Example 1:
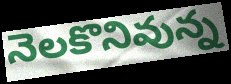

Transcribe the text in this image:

నెలకొనివున్న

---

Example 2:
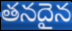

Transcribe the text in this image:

తనదైన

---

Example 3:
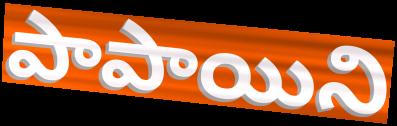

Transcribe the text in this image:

పాపాయిని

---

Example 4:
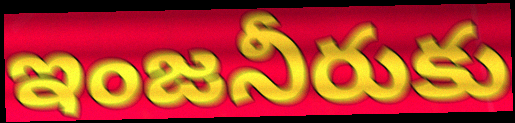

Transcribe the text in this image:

ఇంజనీరుకు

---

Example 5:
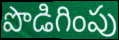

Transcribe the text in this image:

పొడిగింపు